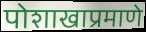
पोशाखाप्रमाणे